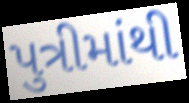
પુત્રીમાંથી